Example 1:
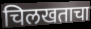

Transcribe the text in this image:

चिलखताचा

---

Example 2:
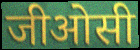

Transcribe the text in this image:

जीओसी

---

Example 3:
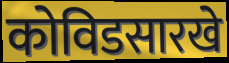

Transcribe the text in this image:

कोविडसारखे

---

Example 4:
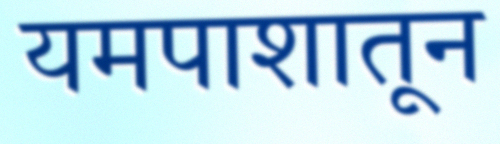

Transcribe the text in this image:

यमपाशातून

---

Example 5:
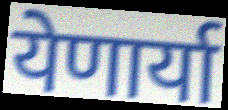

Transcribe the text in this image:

येणार्या